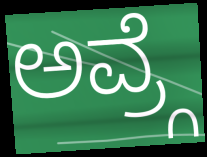
ಅವ್ರ್ಗೆ